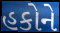
હકોને